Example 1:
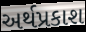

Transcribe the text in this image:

અર્થપ્રકાશ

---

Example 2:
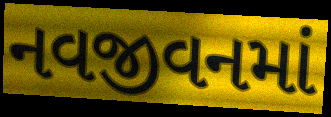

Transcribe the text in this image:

નવજીવનમાં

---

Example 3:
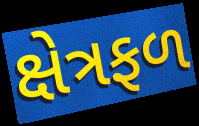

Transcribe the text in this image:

ક્ષેત્રફળ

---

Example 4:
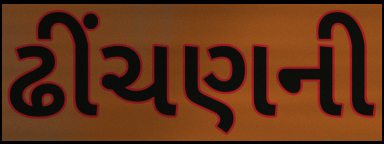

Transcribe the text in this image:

ઢીંચણની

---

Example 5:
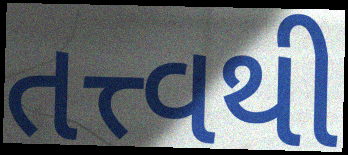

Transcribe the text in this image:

તત્ત્વથી